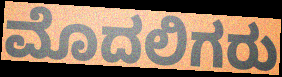
ಮೊದಲಿಗರು